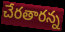
చేరతారన్న